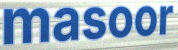
masoor